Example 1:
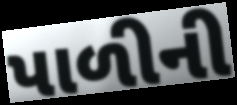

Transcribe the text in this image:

પાળીની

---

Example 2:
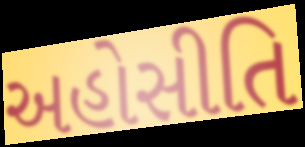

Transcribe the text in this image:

અહોસીતિ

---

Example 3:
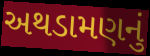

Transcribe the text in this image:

અથડામણનું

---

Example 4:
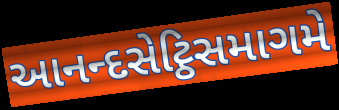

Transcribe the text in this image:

આનન્દસેટ્ઠિસમાગમે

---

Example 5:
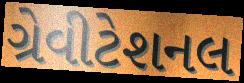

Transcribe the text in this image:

ગ્રેવીટેશનલ